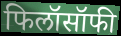
फिलॉसॉफी